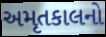
અમૃતકાલનો